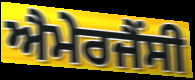
ਐਮੇਰਜੈਂਸੀ